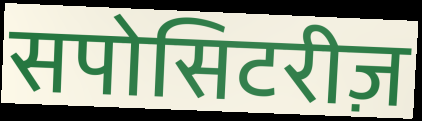
सपोसिटरीज़